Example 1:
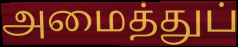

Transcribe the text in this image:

அமைத்துப்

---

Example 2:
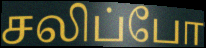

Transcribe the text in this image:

சலிப்போ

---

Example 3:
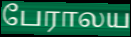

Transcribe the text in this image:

பேராலய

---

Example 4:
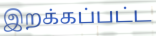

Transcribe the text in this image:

இறக்கப்பட்ட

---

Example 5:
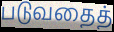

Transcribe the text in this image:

படுவதைத்